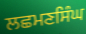
ਲਛਮਣਸਿੰਘ